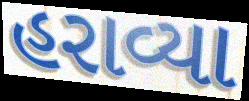
હરાવ્યા